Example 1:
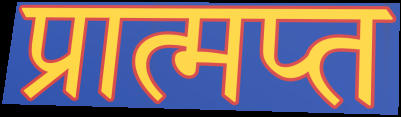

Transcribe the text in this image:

प्रात्मप्त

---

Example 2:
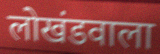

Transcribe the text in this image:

लोखंडवाला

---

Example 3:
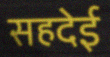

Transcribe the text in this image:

सहदेई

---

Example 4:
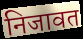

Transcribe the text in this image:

निजावत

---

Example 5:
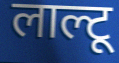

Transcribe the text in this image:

लाल्‍टू